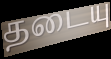
தடையு